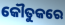
କୌତୁକରେ